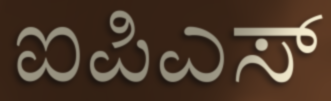
ಐಪಿಎಸ್